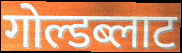
गोल्डब्लाट